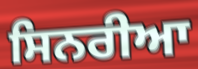
ਸਿਨਰੀਆ